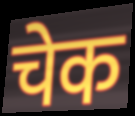
चेक